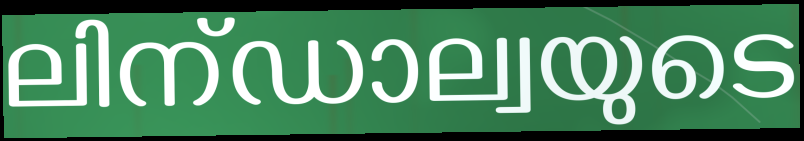
ലിന്ഡാല്വയുടെ